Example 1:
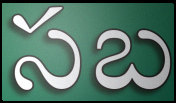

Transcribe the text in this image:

సబ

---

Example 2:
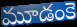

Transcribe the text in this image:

మూడంకె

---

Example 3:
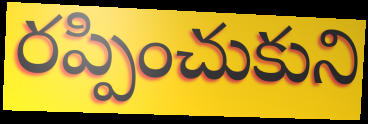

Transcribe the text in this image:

రప్పించుకుని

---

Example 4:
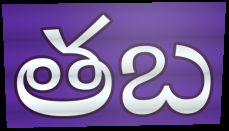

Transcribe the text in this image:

తబ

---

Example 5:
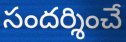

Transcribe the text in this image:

సందర్శించే